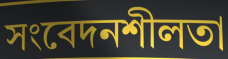
সংবেদনশীলতা